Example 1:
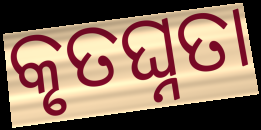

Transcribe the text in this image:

କୃତଘ୍ନତା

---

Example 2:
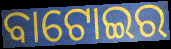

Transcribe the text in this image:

ବାଟୋଇର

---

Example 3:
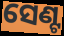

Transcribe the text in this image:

ସେଣ୍ଟ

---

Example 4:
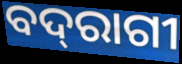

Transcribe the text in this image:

ବଦ୍‌ରାଗୀ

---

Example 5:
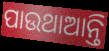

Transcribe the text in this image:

ପାଉଥାଆନ୍ତି